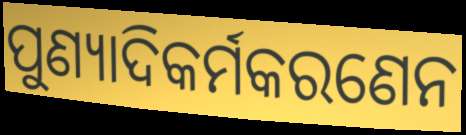
ପୁଣ୍ଯାଦିକର୍ମକରଣେନ